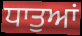
ਧਾਤੁਆਂ